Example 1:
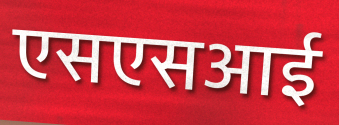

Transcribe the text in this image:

एसएसआई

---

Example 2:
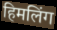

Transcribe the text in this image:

हिमलिंग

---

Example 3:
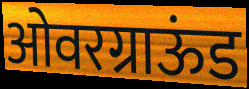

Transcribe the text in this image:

ओवरग्राऊंड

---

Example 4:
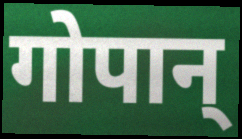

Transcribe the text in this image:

गोपान्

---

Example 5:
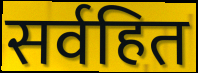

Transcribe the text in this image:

सर्वहित